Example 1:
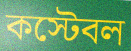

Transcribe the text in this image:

কস্টেবল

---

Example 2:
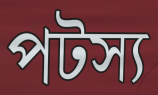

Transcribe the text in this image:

পটস্য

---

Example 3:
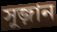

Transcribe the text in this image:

সুজ়ান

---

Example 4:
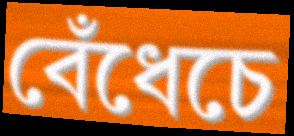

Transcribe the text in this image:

বেঁধেচে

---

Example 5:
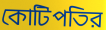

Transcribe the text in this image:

কোটিপতির